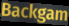
Backgam